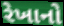
રેખાનો